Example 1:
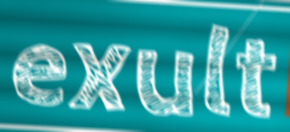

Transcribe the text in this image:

exult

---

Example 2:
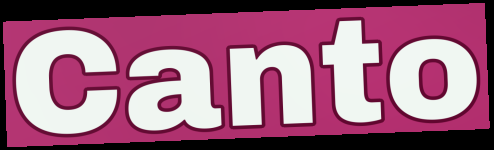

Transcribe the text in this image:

Canto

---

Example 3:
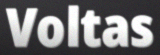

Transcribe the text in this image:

Voltas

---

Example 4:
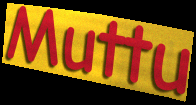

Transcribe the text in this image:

Muttu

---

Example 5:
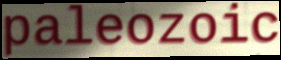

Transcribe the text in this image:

paleozoic